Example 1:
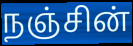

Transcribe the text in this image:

நஞ்சின்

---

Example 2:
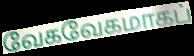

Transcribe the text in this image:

வேகவேகமாகப்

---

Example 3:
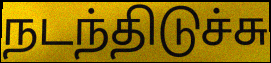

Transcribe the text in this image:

நடந்திடுச்சு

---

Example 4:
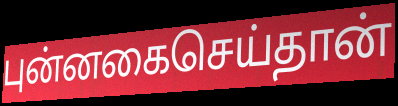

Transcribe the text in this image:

புன்னகைசெய்தான்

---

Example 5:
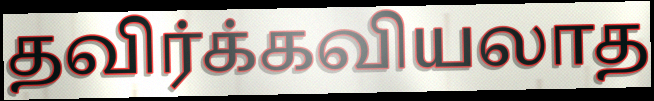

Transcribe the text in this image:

தவிர்க்கவியலாத